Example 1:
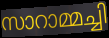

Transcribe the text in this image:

സാറാമ്മച്ചി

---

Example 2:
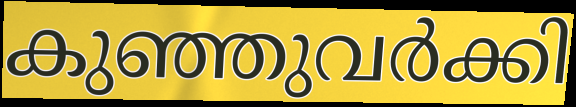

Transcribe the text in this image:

കുഞ്ഞുവർക്കി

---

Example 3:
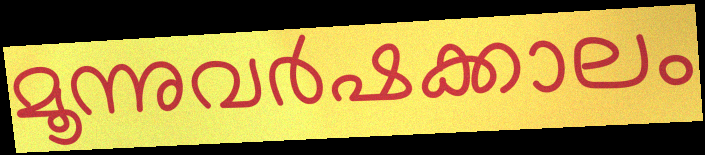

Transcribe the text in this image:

മൂന്നുവർഷക്കാലം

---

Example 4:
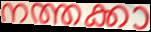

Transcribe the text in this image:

നത്തക്കാ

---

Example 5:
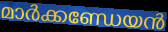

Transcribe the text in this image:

മാർക്കണ്ഡേയൻ